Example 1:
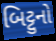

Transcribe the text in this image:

બિટ્ટુનો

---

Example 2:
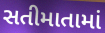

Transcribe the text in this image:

સતીમાતામાં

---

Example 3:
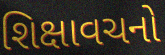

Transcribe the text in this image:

શિક્ષાવચનો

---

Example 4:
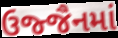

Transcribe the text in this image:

ઉજ્જૈનમાં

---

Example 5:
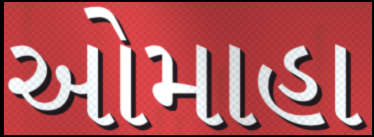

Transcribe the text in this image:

ઓમાહા